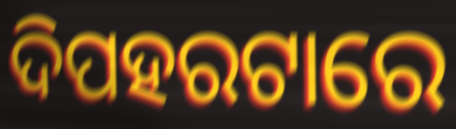
ଦିପହରଟାରେ